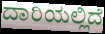
ದಾರಿಯಲ್ಲಿದೆ